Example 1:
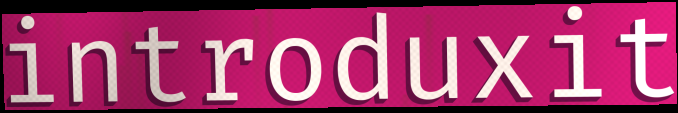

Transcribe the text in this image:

introduxit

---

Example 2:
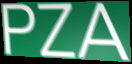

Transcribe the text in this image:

PZA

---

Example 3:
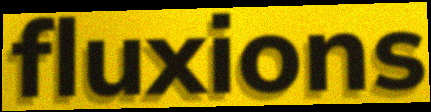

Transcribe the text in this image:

fluxions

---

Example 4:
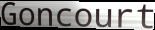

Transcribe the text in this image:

Goncourt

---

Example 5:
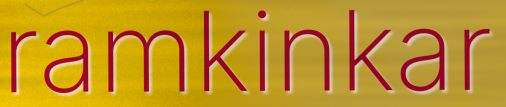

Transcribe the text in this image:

ramkinkar